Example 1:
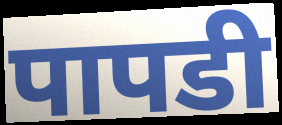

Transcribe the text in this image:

पापडी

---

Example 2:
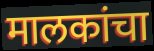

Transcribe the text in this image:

मालकांचा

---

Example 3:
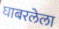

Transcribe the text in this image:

घाबरलेला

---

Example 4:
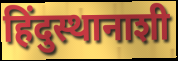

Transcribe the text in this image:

हिंदुस्थानाशी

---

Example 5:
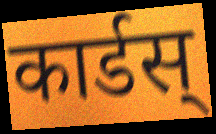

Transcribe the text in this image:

कार्डस्